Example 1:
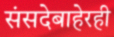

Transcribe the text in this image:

संसदेबाहेरही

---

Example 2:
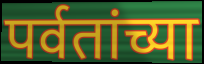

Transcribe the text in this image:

पर्वतांच्या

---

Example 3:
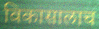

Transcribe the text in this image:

विकासालाच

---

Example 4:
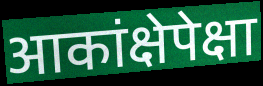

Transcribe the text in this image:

आकांक्षेपेक्षा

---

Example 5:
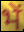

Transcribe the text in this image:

भें